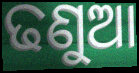
ଢଣୁଆ